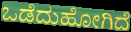
ಒಡೆದುಹೋಗಿದೆ